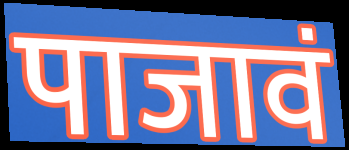
पाजावं